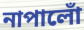
নাপালোঁ